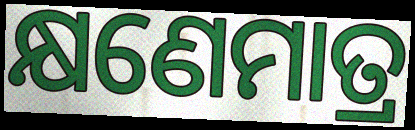
କ୍ଷଣେମାତ୍ର